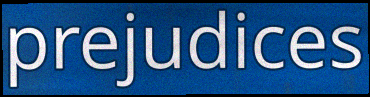
prejudices